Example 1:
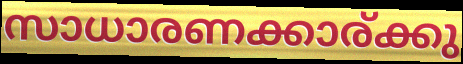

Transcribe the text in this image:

സാധാരണക്കാര്ക്കു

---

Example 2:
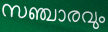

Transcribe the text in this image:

സഞ്ചാരവും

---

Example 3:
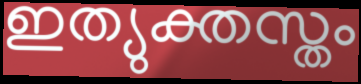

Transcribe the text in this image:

ഇത്യുക്തസ്തം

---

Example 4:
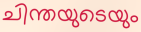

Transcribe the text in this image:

ചിന്തയുടെയും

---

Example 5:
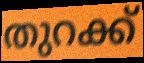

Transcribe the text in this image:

തുറക്ക്